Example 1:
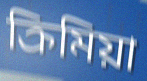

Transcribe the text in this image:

ক্রিমিয়া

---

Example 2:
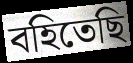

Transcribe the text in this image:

বহিতেছি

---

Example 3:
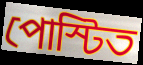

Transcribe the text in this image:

পোস্টিত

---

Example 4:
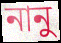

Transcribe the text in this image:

নানু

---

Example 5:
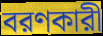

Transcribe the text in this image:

বরণকারী